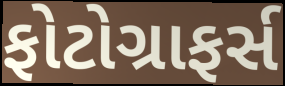
ફોટોગ્રાફર્સ